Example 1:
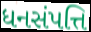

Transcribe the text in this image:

ધનસંપત્તિ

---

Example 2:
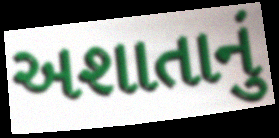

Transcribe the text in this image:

અશાતાનું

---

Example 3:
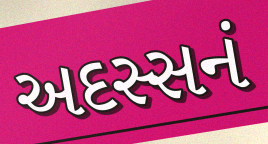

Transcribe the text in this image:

અદસ્સનં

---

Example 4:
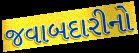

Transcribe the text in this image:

જવાબદારીનો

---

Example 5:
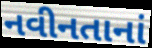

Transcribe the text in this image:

નવીનતાનાં